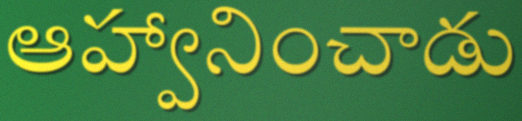
ఆహ్వానించాడు